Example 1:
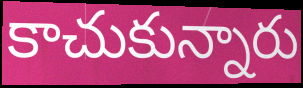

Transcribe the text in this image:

కాచుకున్నారు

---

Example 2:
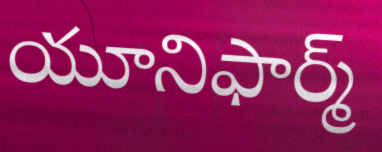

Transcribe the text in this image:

యూనిఫార్మ్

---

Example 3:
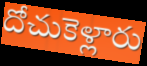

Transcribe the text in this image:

దోచుకెళ్లారు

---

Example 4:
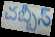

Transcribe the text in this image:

చబ్బీస్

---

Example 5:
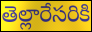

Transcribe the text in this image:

తెల్లారేసరికి